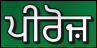
ਪੀਰੋਜ਼